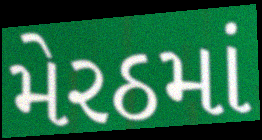
મેરઠમાં